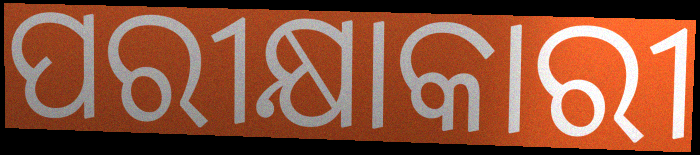
ପରୀକ୍ଷାକାରୀ